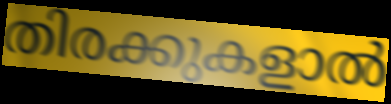
തിരക്കുകളാൽ